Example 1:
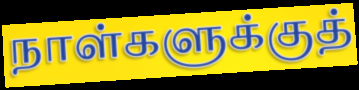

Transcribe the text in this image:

நாள்களுக்குத்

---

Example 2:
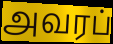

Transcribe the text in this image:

அவரப்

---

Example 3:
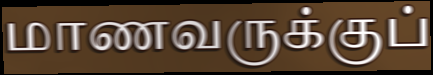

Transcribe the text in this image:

மாணவருக்குப்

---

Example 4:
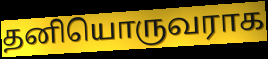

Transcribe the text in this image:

தனியொருவராக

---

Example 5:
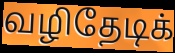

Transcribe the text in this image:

வழிதேடிக்